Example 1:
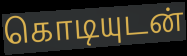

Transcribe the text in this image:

கொடியுடன்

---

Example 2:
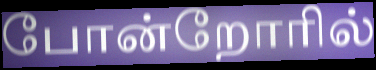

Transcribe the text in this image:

போன்றோரில்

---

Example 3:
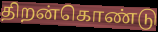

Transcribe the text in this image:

திறன்கொண்டு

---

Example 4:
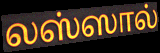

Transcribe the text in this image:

லஸ்ஸால்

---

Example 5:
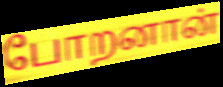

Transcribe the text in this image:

போறனான்